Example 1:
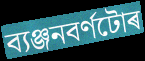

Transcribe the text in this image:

ব্যঞ্জনবৰ্ণটোৰ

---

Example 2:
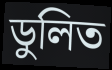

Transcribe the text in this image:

ডুলিত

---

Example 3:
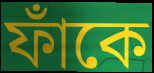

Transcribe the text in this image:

ফাঁকে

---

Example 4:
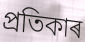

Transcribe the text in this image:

প্ৰতিকাৰ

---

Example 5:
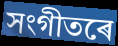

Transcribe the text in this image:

সংগীতৰে